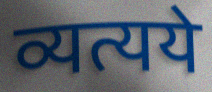
व्यत्यये